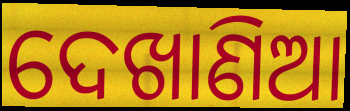
ଦେଖାଣିଆ